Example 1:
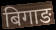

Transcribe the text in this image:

बिगाङ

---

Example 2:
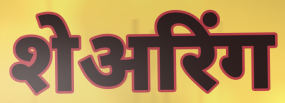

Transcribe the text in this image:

शेअरिंग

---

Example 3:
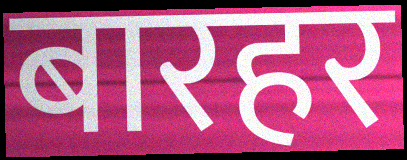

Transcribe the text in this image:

बारहर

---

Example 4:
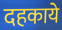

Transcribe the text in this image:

दहकाये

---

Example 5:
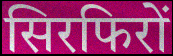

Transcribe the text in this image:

सिरफिरों